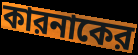
কারনাকের